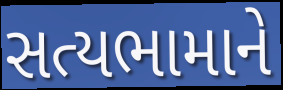
સત્યભામાને